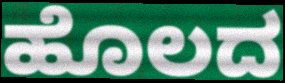
ಹೊಲದ